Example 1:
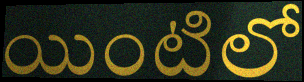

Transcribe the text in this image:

యింటిలో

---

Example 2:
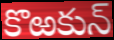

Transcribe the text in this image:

కొఱకున్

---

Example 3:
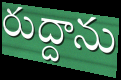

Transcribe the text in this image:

రుద్దాను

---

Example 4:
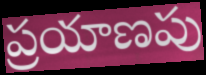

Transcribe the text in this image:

ప్రయాణపు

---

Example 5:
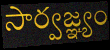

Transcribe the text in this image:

సార్వజ్ఞ్యం